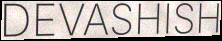
DEVASHISH